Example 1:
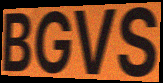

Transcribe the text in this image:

BGVS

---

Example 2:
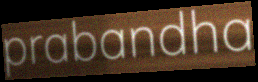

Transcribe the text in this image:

prabandha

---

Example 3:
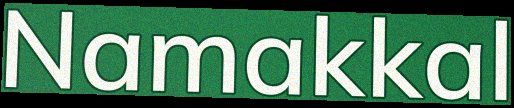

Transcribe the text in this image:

Namakkal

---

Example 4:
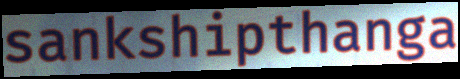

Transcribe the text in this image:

sankshipthanga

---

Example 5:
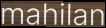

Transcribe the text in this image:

mahilan